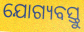
ଯୋଗ୍ୟବସ୍ତୁ